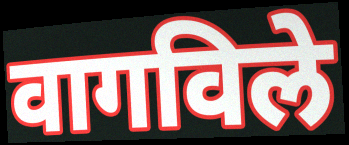
वागविले